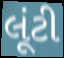
લૂંટી